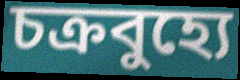
চক্রবুহ্যে